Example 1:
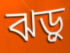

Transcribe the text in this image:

ঝড়ু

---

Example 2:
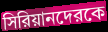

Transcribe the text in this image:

সিরিয়ানদেরকে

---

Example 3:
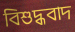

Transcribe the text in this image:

বিশুদ্ধবাদ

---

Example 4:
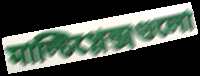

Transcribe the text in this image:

মাল্টিপ্লেক্সগুলো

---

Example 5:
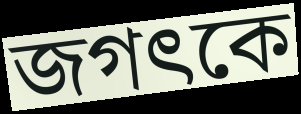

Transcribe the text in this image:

জগৎকে